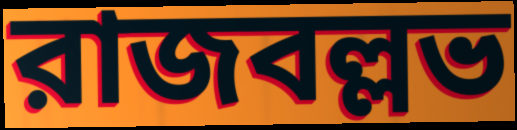
রাজবল্লভ